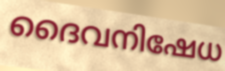
ദൈവനിഷേധ